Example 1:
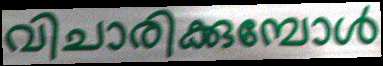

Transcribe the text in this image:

വിചാരിക്കുമ്പോൾ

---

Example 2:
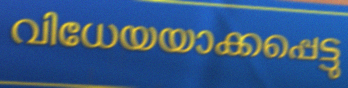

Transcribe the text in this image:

വിധേയയാക്കപ്പെട്ടു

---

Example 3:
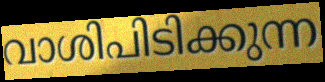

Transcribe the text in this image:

വാശിപിടിക്കുന്ന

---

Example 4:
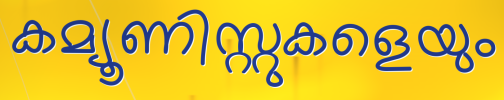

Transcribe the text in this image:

കമ്യൂണിസ്റ്റുകളെയും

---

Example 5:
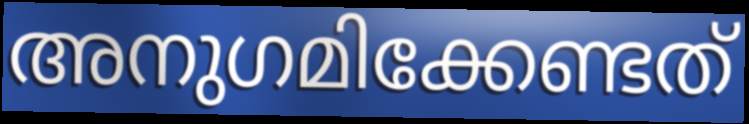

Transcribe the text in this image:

അനുഗമിക്കേണ്ടത്